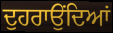
ਦੁਹਰਾਉਂਦਿਆਂ